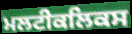
ਮਲਟੀਕਲਿਕਸ